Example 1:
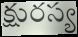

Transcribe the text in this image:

క్షురస్య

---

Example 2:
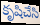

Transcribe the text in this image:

కృషిచేసి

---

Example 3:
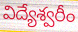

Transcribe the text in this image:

విద్యేశ్వరీం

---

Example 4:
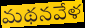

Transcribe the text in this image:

మథనవేళ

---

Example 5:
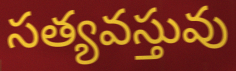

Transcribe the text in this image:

సత్యవస్తువు